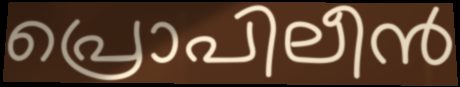
പ്രൊപിലീൻ